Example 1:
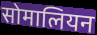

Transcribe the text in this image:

सोमालियन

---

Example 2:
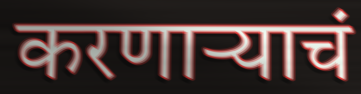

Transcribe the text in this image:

करणाऱ्याचं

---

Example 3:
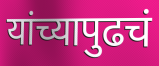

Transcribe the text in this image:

यांच्यापुढचं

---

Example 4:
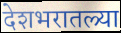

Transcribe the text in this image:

देशभरातल्या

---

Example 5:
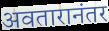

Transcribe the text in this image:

अवतारानंतर